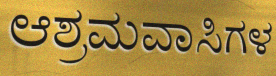
ಆಶ್ರಮವಾಸಿಗಳ